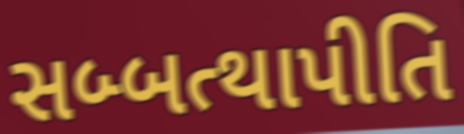
સબ્બત્થાપીતિ